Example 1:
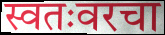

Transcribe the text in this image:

स्वतःवरचा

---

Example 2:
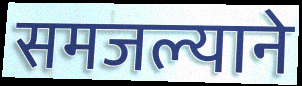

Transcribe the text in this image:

समजल्याने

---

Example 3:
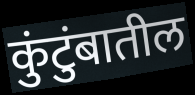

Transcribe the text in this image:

कुंटुंबातील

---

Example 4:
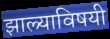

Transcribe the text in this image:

झाल्याविषयी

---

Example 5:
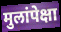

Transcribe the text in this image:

मुलांपेक्षा